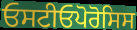
ਓਸਟੀਓਪੋਰੋਸਿਸ